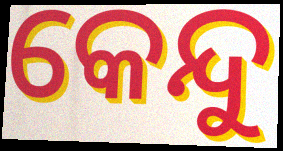
କେନ୍ଦୁ